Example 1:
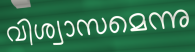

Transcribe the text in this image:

വിശ്വാസമെന്നു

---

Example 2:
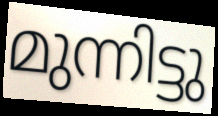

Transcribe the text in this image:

മുന്നിട്ടു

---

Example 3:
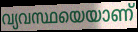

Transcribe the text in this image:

വ്യവസ്ഥയെയാണ്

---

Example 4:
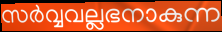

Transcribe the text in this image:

സർവ്വവല്ലഭനാകുന്ന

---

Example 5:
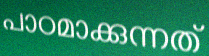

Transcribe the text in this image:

പാഠമാക്കുന്നത്